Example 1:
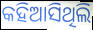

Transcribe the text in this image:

କହିଆସିଥିଲି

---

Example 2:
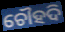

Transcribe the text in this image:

ଚୌହଦି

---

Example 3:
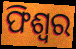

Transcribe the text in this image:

ଫିଶ୍ୱର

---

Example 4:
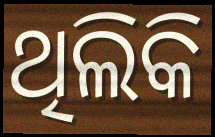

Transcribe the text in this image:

ଥିଲିକି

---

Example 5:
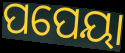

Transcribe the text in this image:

ପପେୟା